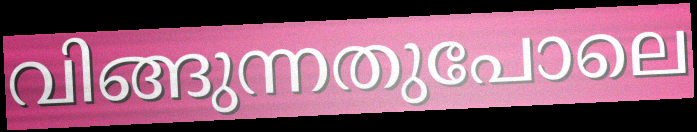
വിങ്ങുന്നതുപോലെ